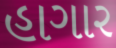
હાગાર